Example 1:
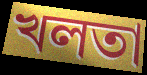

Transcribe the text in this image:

খলতা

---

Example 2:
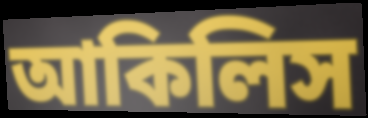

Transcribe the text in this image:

আকিলিস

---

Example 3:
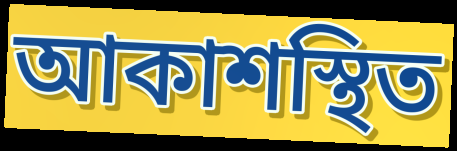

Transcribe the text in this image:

আকাশস্থিত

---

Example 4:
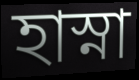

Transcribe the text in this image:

হাস্না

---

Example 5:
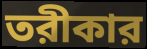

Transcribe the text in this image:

তরীকার